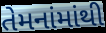
તેમનાંમાંથી